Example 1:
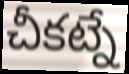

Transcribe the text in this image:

చీకట్నే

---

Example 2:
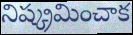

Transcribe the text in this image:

నిష్క్రమించాక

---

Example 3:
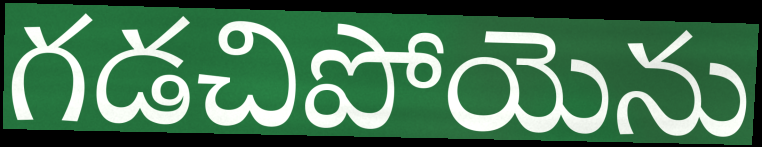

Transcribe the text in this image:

గడచిపోయెను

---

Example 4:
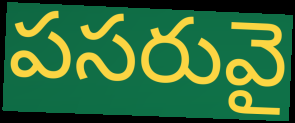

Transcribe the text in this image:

పసరువై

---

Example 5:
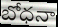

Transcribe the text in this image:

బోధనా